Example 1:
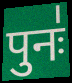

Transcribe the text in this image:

पुनः॑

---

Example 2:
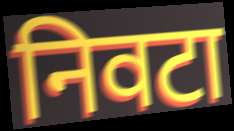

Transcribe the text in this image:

निवटा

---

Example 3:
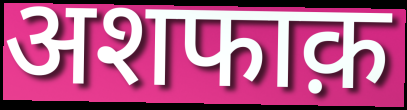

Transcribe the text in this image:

अशफाक़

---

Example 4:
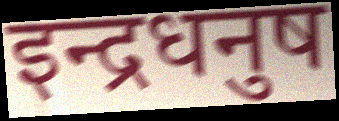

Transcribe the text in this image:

इन्‍द्रधनुष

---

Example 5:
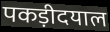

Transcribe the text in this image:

पकड़ीदयाल